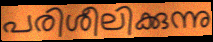
പരിശീലിക്കുന്നു